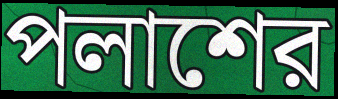
পলাশের